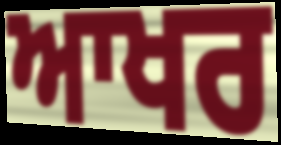
ਆਖਰ